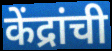
केंद्रांची